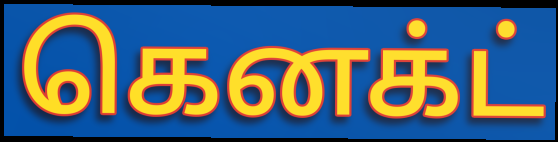
கெனக்ட்